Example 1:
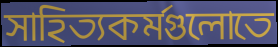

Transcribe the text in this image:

সাহিত্যকর্মগুলোতে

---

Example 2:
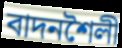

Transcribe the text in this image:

বাদনশৈলী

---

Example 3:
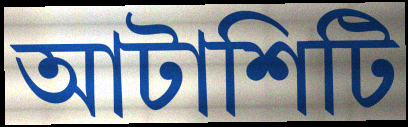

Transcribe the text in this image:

আটাশিটি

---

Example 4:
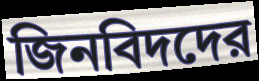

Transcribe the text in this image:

জিনবিদদের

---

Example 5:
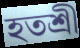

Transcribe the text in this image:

হতশ্রী